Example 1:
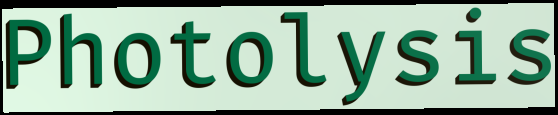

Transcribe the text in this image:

Photolysis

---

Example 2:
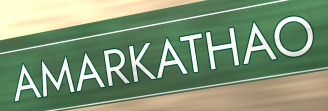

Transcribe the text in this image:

AMARKATHAO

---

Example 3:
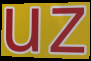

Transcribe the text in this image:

uz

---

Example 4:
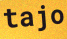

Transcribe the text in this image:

tajo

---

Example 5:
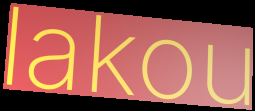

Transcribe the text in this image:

lakou